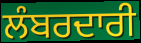
ਲੰਬਰਦਾਰੀ